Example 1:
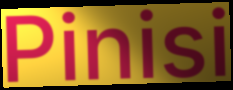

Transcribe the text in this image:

Pinisi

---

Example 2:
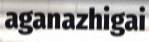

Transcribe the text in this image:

aganazhigai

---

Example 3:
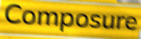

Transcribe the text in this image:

Composure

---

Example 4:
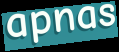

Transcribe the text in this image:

apnas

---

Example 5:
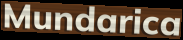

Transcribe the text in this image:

Mundarica